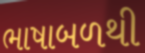
ભાષાબળથી